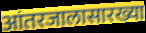
आंतरजालासारख्या